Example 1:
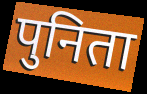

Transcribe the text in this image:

पुनिता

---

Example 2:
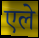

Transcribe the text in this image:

एले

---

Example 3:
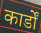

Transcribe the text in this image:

कार्डों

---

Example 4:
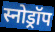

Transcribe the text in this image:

स्नोड्रॉप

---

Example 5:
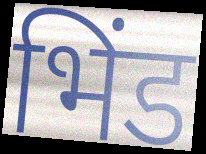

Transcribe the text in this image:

भिंड